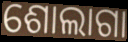
ଶୋଲାଗା